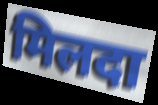
मिलदा